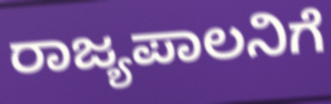
ರಾಜ್ಯಪಾಲನಿಗೆ